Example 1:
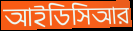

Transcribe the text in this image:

আইডিসিআর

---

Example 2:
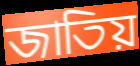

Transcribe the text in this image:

জাতিয়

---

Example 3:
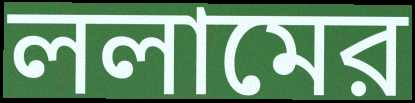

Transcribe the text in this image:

ললামের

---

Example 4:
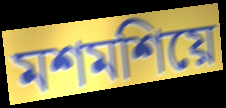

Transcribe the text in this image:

মশমশিয়ে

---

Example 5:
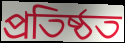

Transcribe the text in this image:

প্রতিষ্ঠত